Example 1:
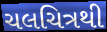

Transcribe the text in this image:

ચલચિત્રથી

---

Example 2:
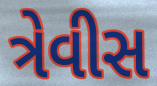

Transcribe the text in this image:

ત્રેવીસ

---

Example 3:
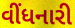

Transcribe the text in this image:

વીંધનારી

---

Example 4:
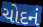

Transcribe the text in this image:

ચોદનં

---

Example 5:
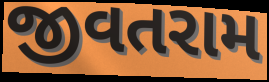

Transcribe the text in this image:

જીવતરામ